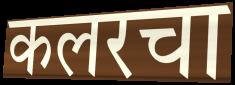
कलरचा